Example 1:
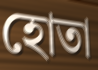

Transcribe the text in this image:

হোতা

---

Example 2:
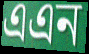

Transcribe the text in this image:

এএন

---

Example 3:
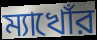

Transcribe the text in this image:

ম্যাখোঁর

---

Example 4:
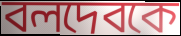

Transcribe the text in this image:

বলদেবকে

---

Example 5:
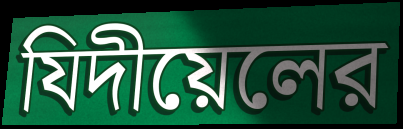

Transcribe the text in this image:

যিদীয়েলের